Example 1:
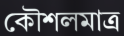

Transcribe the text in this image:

কৌশলমাত্র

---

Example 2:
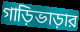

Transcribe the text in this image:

গাড়িভাড়ার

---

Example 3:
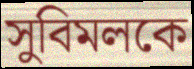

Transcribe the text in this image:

সুবিমলকে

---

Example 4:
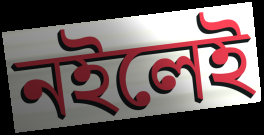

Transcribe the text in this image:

নইলেই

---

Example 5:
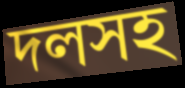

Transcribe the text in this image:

দলসহ